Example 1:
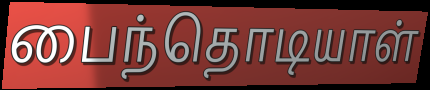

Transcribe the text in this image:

பைந்தொடியாள்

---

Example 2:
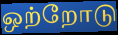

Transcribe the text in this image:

ஒற்றோடு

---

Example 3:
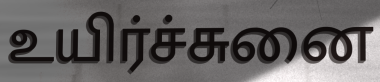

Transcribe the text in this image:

உயிர்ச்சுனை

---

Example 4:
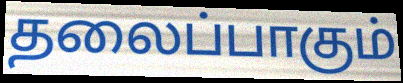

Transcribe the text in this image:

தலைப்பாகும்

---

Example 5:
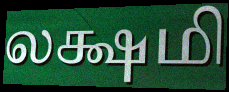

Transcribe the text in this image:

லக்ஷமி